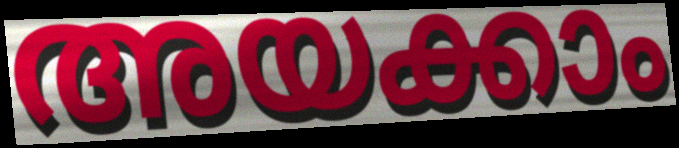
അയക്കാം